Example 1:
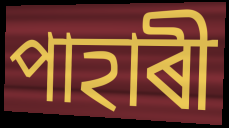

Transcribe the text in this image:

পাহাৰী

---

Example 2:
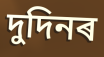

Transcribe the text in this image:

দুদিনৰ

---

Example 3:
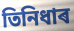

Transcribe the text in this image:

তিনিধাৰ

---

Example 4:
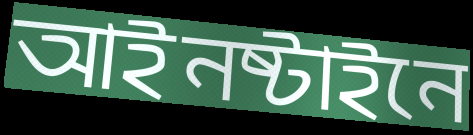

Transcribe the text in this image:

আইনষ্টাইনে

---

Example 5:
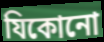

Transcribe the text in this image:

যিকোনো